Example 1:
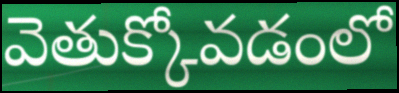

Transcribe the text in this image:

వెతుక్కోవడంలో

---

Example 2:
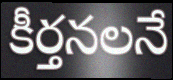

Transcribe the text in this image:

కీర్తనలనే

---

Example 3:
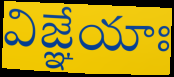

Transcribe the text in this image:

విజ్ఞేయాః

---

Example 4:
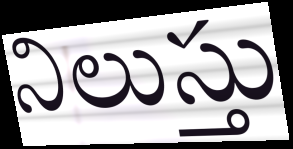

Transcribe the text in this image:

నిలుస్తు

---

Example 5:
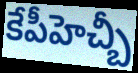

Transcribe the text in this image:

కేపీహెచ్బీ